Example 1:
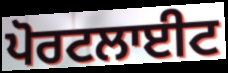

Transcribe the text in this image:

ਪੋਰਟਲਾਈਟ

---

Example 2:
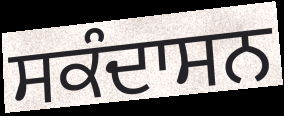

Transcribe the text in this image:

ਸਕੰਦਾਸਨ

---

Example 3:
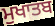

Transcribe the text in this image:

ਮੁਖਾਤਬ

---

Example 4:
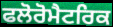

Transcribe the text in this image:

ਫਲੋਰੋਮੈਟਰਿਕ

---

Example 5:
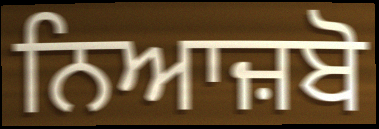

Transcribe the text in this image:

ਨਿਆਜ਼ਬੋ